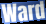
Ward